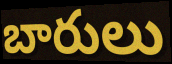
బారులు